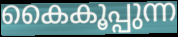
കൈകൂപ്പുന്ന